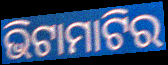
ଭିଟାମାଟିର